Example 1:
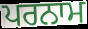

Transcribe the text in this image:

ਪਰਨਾਮ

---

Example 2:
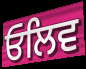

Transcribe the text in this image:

ਓਲਿਵ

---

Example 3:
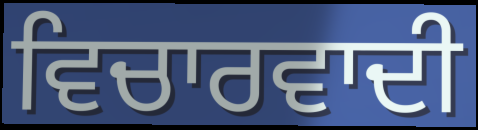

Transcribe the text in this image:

ਵਿਚਾਰਵਾਦੀ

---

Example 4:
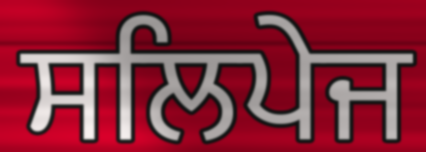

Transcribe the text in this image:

ਸਲਿਪੇਜ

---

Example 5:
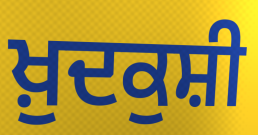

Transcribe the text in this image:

ਖ਼ੁਦਕੁਸ਼ੀ